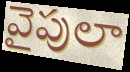
వైపులా